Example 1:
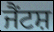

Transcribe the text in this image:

ਜੈਂਟਸ਼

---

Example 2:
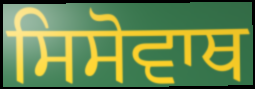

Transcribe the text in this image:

ਸਿਸੋਵਾਥ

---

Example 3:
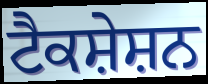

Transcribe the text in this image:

ਟੈਕਸ਼ੇਸ਼ਨ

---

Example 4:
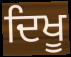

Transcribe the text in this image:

ਦਿਖੂ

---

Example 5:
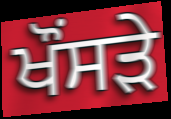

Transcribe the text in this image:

ਖੌਂਸੜੇ